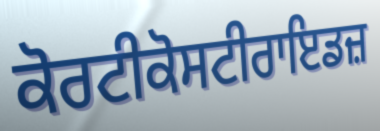
ਕੋਰਟੀਕੋਸਟੀਰਾਇਡਜ਼